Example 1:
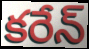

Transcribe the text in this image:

కరేన్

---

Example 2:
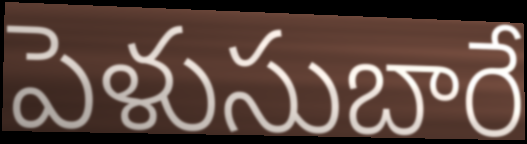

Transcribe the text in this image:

పెళుసుబారే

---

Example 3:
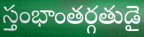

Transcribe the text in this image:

స్తంభాంతర్గతుడై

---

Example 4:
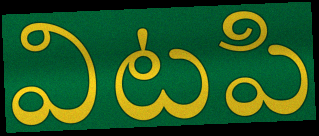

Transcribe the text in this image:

విటపి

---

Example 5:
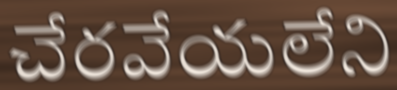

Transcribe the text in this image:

చేరవేయలేని